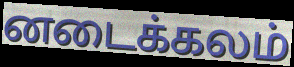
னடைக்கலம்